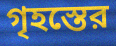
গৃহস্তের